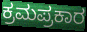
ಕ್ರಮಪ್ರಕಾರ